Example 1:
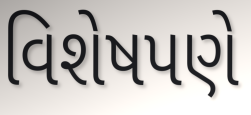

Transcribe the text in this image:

વિશેષપણે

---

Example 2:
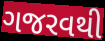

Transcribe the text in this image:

ગજરવથી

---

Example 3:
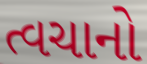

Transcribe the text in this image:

ત્વચાનો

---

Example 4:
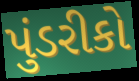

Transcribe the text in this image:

પુંડરીકો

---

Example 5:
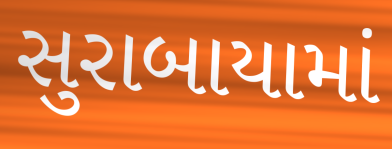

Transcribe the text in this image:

સુરાબાયામાં